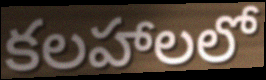
కలహాలలో